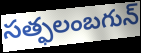
సత్ఫలంబగున్